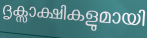
ദൃക്സാക്ഷികളുമായി